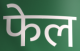
फेल